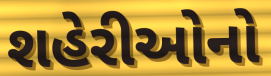
શહેરીઓનો